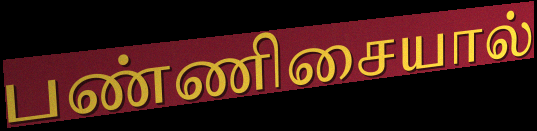
பண்ணிசையால்